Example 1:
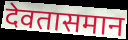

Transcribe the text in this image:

देवतासमान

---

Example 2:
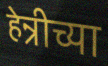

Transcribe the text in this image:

हेन्रीच्या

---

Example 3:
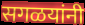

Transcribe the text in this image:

सगळयांनी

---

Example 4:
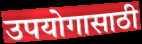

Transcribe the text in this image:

उपयोगासाठी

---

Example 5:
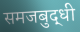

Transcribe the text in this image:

समजबुद्धी